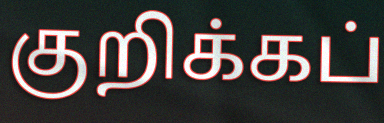
குறிக்கப்